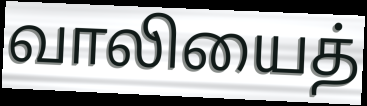
வாலியைத்